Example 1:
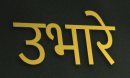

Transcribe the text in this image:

उभारे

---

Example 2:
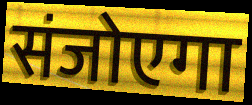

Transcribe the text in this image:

संजोएगा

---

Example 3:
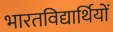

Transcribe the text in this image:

भारतविद्यार्थियों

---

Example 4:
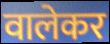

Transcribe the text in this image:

वालेकर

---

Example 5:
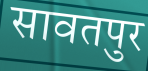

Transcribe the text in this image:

सावतपुर